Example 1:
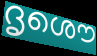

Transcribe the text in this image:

ദൃശൌ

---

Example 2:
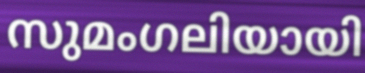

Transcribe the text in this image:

സുമംഗലിയായി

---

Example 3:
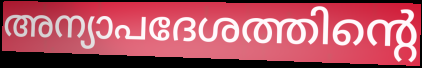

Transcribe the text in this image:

അന്യാപദേശത്തിന്റെ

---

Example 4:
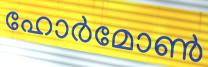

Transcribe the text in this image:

ഹോർമോൺ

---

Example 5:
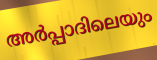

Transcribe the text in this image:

അർപ്പാദിലെയും